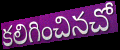
కలిగించినచో